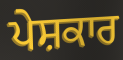
ਪੇਸ਼ਕਾਰ